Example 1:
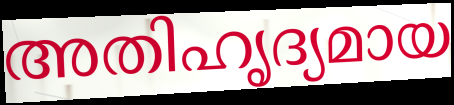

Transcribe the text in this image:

അതിഹൃദ്യമായ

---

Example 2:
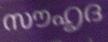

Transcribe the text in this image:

സൗഹൃദ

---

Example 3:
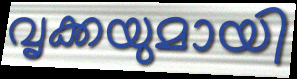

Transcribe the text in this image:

വൃക്കയുമായി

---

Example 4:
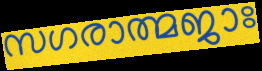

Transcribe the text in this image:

സഗരാത്മജാഃ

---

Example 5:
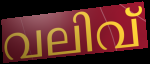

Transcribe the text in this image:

വലിവ്